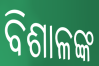
ବିଶାଳଙ୍କ